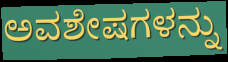
ಅವಶೇಷಗಳನ್ನು